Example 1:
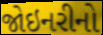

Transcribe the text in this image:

જોઇનરીનો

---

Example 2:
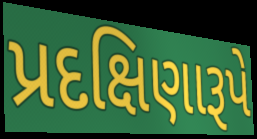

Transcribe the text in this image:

પ્રદક્ષિણારૂપે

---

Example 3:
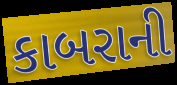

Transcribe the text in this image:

કાબરાની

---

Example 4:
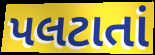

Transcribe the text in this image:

પલટાતાં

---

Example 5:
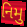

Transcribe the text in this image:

નિમુ